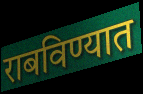
राबविण्‍यात